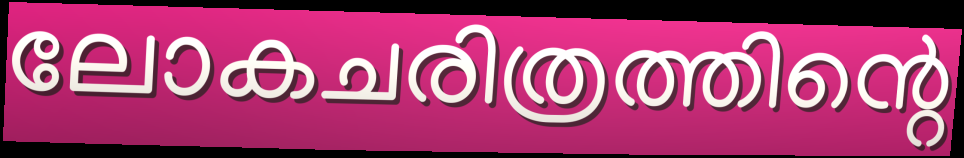
ലോകചരിത്രത്തിന്റെ